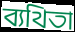
ব্যথিতা